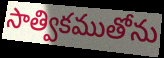
సాత్వికముతోను